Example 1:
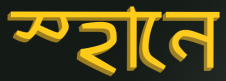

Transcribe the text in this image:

স্হানে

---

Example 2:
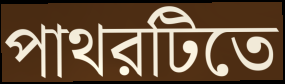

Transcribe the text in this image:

পাথরটিতে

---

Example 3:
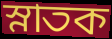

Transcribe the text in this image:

স্নাতক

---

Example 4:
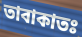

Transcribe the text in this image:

তাবাকাতঃ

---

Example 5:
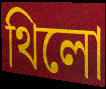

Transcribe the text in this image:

থিলো